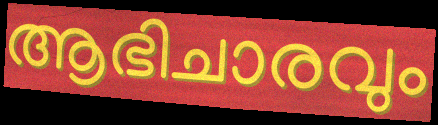
ആഭിചാരവും